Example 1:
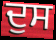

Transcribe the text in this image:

ਦੁਸ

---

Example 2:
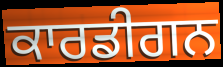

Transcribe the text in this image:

ਕਾਰਡੀਗਨ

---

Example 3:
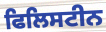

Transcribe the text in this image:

ਫਿਲਿਸਟੀਨ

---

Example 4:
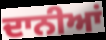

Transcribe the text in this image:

ਦਾਨੀਆਂ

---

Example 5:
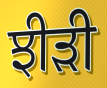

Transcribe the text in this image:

ਝੀੜੀ